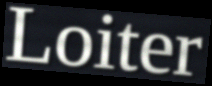
Loiter